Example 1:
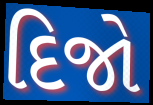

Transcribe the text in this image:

દિજો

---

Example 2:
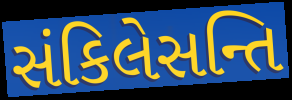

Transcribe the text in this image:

સંકિલેસન્તિ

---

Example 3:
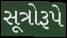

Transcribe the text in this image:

સૂત્રોરૂપે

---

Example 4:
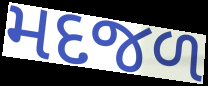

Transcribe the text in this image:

મદજળ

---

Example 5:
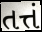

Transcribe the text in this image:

તત્તં